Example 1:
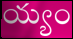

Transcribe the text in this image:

య్యం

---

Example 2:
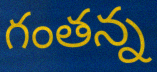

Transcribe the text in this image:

గంతన్న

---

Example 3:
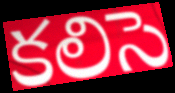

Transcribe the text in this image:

కలిసె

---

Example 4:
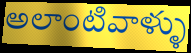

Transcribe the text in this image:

అలాంటివాళ్ళు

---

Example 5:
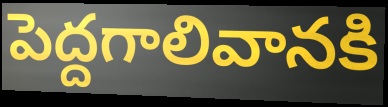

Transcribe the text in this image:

పెద్దగాలివానకి